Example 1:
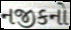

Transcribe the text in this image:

નજીકનો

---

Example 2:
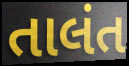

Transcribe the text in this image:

તાલંત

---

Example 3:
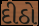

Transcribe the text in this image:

દીઠો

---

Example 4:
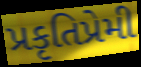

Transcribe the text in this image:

પ્રકૃતિપ્રેમી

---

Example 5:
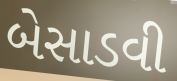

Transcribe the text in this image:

બેસાડવી